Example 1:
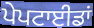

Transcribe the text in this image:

ਪੇਪਟਾਈਡਾਂ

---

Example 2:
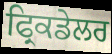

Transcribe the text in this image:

ਫ੍ਰਿਕਡੇਲਰ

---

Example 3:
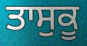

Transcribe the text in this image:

ਤਾਸੁਕੂ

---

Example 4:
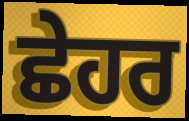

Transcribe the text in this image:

ਛੇਹਰ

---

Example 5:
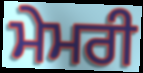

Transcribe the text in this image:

ਮੇਮਰੀ